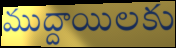
ముద్దాయిలకు